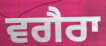
ਵਗੈਰਾ